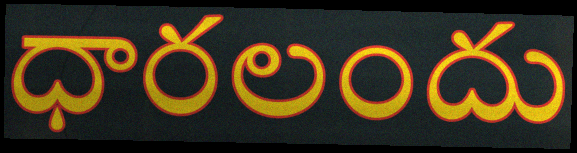
ధారలందు